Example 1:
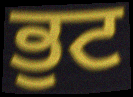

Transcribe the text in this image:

ਭੁਟ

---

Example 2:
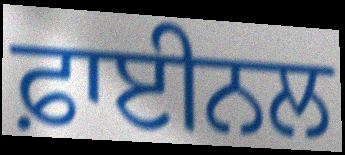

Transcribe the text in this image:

ਫ਼ਾਈਨਲ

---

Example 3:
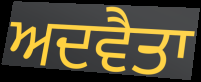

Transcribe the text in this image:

ਅਦਵੈਤਾ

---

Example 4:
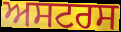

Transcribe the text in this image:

ਅਸਟਰਸ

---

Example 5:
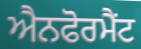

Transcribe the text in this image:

ਐਨਫੋਰਮੈਂਟ